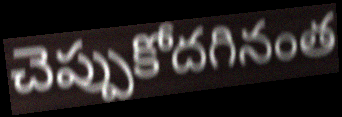
చెప్పుకోదగినంత